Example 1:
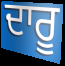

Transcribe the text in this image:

ਦਾਰੂ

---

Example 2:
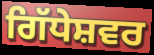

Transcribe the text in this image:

ਗਿੱਧੇਸ਼ਵਰ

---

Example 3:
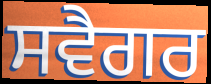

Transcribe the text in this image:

ਸਵੈਗਰ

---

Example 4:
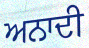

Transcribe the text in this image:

ਅਨਾਦੀ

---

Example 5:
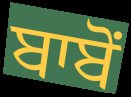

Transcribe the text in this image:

ਬਾਬੋਂ